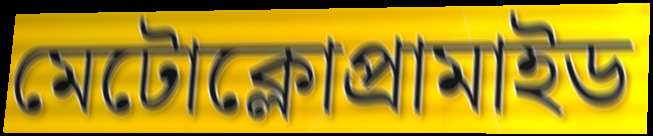
মেটোক্লোপ্রামাইড